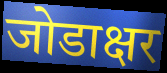
जोडाक्षर